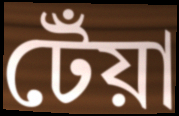
টেঁয়া